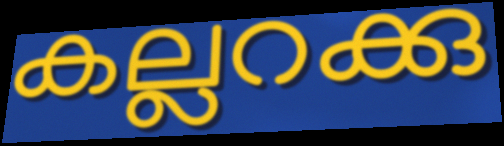
കല്ലറക്കു